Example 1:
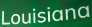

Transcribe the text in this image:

Louisiana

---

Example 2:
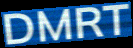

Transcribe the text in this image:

DMRT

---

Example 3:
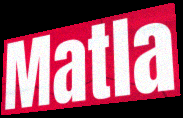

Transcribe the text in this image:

Matla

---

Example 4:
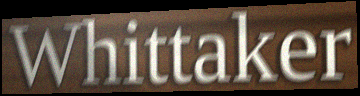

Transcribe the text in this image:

Whittaker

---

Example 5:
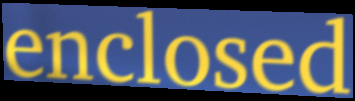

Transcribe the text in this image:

enclosed